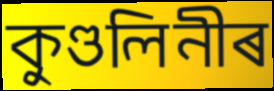
কুণ্ডলিনীৰ